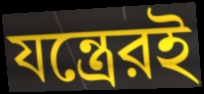
যন্ত্রেরই